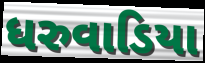
ધરુવાડિયા